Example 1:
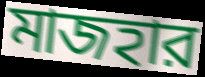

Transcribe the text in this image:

মাজহার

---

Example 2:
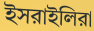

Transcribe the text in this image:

ইসরাইলিরা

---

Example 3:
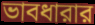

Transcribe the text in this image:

ভাবধারার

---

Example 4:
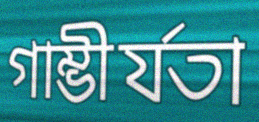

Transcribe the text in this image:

গাম্ভীর্যতা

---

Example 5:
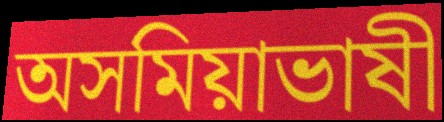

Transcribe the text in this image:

অসমিয়াভাষী